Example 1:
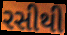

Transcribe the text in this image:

રસીથી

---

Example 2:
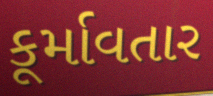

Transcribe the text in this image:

કૂર્માવતાર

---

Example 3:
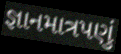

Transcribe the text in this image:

જ્ઞાનમાત્રપણું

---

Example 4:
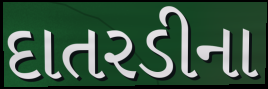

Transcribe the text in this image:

દાતરડીના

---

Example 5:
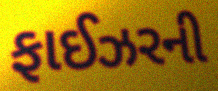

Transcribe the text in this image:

ફાઈઝરની